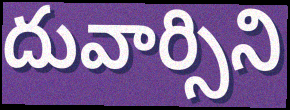
దువార్సిని